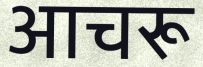
आचरू